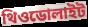
থিওডোলাইট